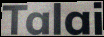
Talai